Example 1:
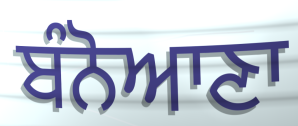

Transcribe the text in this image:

ਬੰਨੋਆਣਾ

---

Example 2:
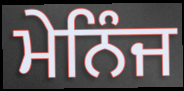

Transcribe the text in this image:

ਮੇਨਿੰਜ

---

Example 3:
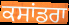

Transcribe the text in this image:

ਕਸਾਂਡਰਾ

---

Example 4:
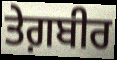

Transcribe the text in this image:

ਤੇਗ਼ਬੀਰ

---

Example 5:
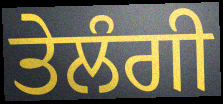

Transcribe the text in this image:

ਤੇਲੰਗੀ